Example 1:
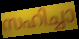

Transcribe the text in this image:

സഹിച്ചാ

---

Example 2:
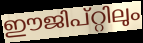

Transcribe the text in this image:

ഈജിപ്റ്റിലും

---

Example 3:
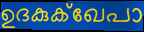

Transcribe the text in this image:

ഉദകുക്ഖേപാ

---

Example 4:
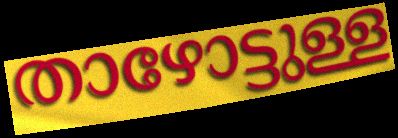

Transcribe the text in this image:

താഴോട്ടുള്ള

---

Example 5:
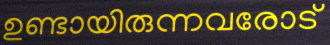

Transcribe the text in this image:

ഉണ്ടായിരുന്നവരോട്